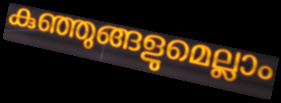
കുഞ്ഞുങ്ങളുമെല്ലാം